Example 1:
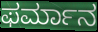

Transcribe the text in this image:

ಫರ್ಮಾನ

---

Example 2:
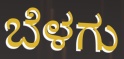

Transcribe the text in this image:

ಬೆಳಗು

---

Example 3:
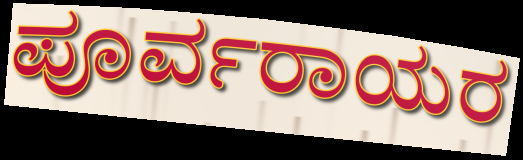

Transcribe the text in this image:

ಪೂರ್ವರಾಯರ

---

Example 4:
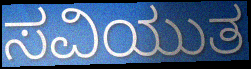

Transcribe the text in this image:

ಸವಿಯುತ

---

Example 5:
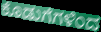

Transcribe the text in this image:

ಕೊಡುಗೆಗಳಿಂದ